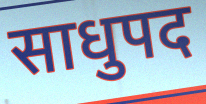
साधुपद